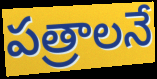
పత్రాలనే